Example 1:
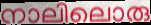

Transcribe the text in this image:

നാലിലൊരു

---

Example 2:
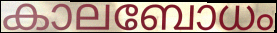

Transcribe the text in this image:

കാലബോധം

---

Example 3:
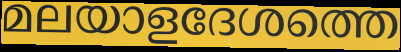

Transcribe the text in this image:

മലയാളദേശത്തെ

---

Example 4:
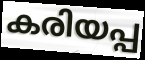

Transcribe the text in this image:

കരിയപ്പ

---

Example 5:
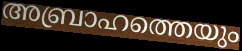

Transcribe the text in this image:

അബ്രാഹത്തെയും